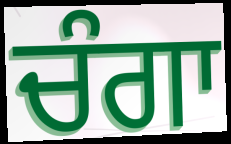
ਚੰਗਾ